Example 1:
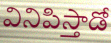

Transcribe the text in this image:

వినిపిస్తాడో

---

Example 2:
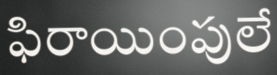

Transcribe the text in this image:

ఫిరాయింపులే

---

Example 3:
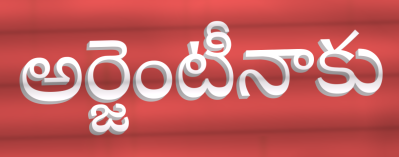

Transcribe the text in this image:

అర్జెంటీనాకు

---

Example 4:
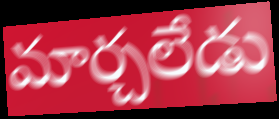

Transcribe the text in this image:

మార్చలేడు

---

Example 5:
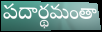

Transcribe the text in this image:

పదార్థమంతా